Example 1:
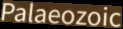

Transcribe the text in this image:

Palaeozoic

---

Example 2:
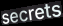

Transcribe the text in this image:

secrets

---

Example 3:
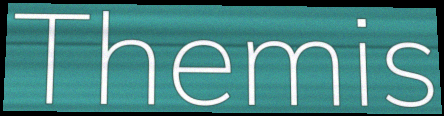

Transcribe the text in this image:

Themis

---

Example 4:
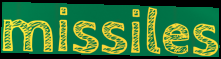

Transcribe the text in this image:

missiles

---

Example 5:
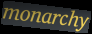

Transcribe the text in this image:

monarchy